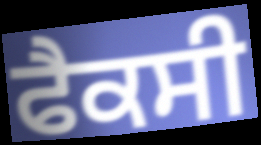
ਫੈਕਸੀ